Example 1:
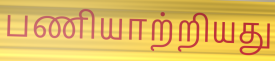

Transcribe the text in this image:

பணியாற்றியது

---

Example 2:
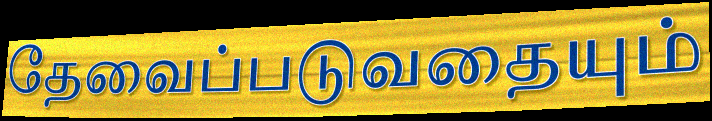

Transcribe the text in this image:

தேவைப்படுவதையும்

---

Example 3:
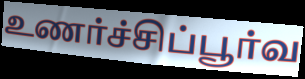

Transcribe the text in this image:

உணர்ச்சிப்பூர்வ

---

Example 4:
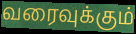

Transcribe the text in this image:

வரைவுக்கும்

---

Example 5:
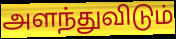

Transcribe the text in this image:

அளந்துவிடும்